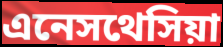
এনেসথেসিয়া